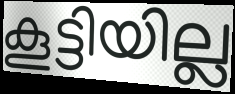
കൂട്ടിയില്ല